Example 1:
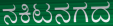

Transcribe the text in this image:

ನಕಿಟನಗದ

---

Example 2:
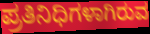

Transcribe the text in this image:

ಪ್ರತಿನಿಧಿಗಳಾಗಿರುವ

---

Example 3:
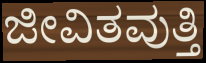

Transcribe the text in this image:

ಜೀವಿತವುತ್ತಿ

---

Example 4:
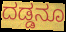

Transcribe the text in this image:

ದಡ್ಡನೂ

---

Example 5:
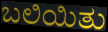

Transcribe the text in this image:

ಬಲಿಯಿತು